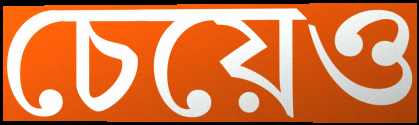
চেয়েও